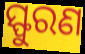
ସ୍ଫୁରଣ